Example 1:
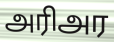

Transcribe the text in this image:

அரிஅர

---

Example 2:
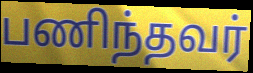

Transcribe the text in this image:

பணிந்தவர்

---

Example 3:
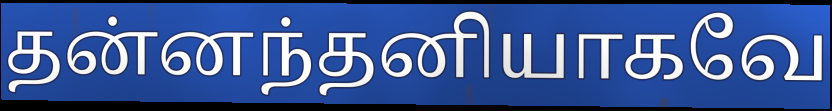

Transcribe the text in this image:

தன்னந்தனியாகவே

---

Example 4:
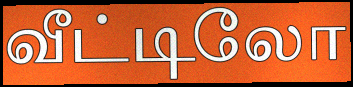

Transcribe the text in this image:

வீட்டிலோ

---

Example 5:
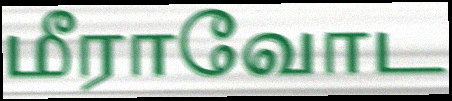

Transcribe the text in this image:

மீராவோட